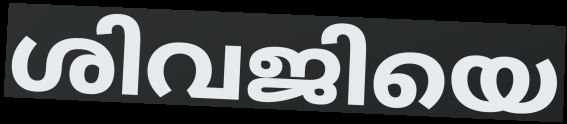
ശിവജിയെ